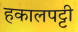
हकालपट्टी